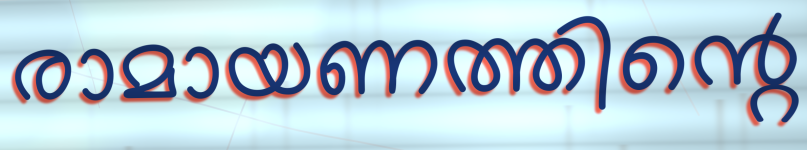
രാമായണത്തിന്റെ